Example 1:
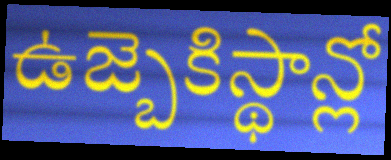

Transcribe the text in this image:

ఉజ్బెకిస్థాన్లో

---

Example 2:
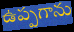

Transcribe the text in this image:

ఉప్పగాను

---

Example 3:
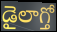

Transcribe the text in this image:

డైలాగ్తో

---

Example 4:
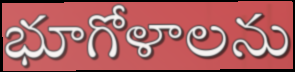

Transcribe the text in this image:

భూగోళాలను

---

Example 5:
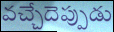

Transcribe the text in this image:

వచ్చేదెప్పుడు